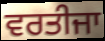
ਵਰਤੀਜਾ